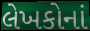
લેખકોનાં